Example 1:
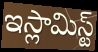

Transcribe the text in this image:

ఇస్లామిస్ట్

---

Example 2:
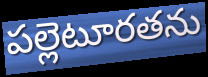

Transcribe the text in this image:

పల్లెటూరతను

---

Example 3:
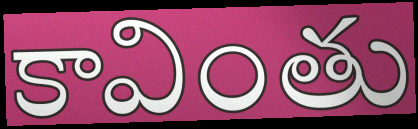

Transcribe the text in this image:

కావింతు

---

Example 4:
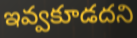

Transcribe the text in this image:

ఇవ్వకూడదని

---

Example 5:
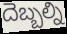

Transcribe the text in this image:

దెబ్బల్ని